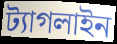
ট্যাগলাইন